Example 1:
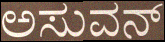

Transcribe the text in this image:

ಅಸುವನ್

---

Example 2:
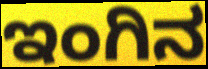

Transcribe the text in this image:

ಇಂಗಿನ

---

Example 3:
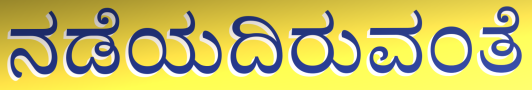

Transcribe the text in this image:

ನಡೆಯದಿರುವಂತೆ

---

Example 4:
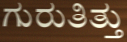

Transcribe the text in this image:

ಗುರುತಿತ್ತು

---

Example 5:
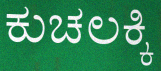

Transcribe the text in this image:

ಕುಚಲಕ್ಕಿ